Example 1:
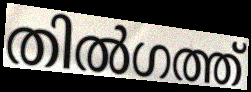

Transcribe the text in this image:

തിൽഗത്ത്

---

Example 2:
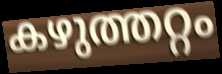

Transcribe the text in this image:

കഴുത്തറ്റം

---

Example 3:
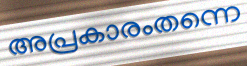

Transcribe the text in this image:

അപ്രകാരംതന്നെ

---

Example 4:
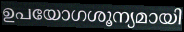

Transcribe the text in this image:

ഉപയോഗശൂന്യമായി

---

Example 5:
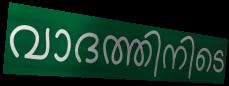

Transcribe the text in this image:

വാദത്തിനിടെ